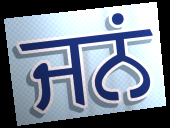
ਜਨਂ